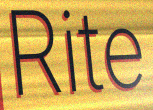
Rite